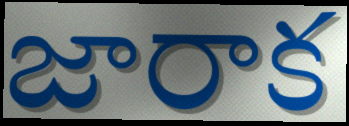
జారాక